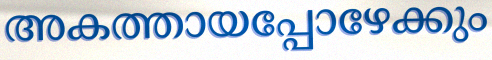
അകത്തായപ്പോഴേക്കും